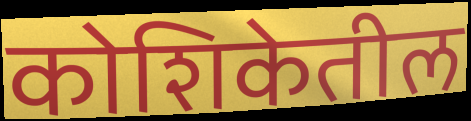
कोशिकेतील